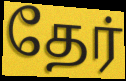
தேர்